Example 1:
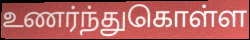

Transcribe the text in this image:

உணர்ந்துகொள்ள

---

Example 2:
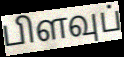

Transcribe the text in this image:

பிளவுப்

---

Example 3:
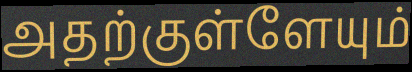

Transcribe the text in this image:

அதற்குள்ளேயும்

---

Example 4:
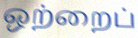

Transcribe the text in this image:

ஒற்றைப்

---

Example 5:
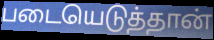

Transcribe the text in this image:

படையெடுத்தான்